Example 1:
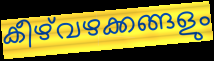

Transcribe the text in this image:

കീഴ്‌വഴക്കങ്ങളും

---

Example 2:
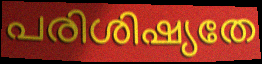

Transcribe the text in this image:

പരിശിഷ്യതേ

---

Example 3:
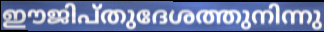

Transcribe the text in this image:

ഈജിപ്തുദേശത്തുനിന്നു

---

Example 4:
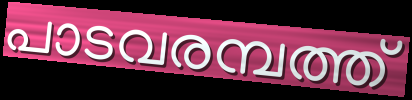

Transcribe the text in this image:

പാടവരമ്പത്ത്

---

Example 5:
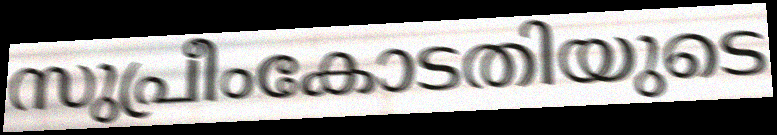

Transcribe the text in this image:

സുപ്രീംകോടതിയുടെ